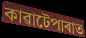
কাৱাটেপাৰাত